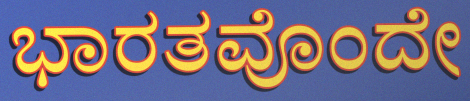
ಭಾರತವೊಂದೇ